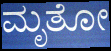
ಮೃತೋ